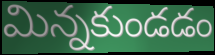
మిన్నకుండడం